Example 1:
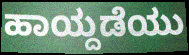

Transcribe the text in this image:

ಹಾಯ್ದಡೆಯು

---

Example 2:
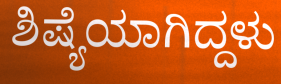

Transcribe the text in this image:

ಶಿಷ್ಯೆಯಾಗಿದ್ದಳು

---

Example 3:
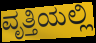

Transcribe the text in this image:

ವೃತ್ತಿಯಲ್ಲಿ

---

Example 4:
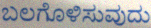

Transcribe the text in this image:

ಬಲಗೊಳಿಸುವುದು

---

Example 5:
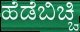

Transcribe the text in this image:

ಹೆಡೆಬಿಚ್ಚಿ